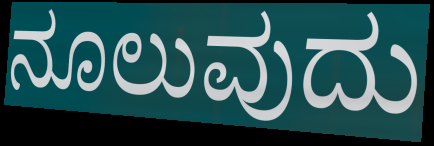
ನೂಲುವುದು